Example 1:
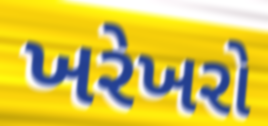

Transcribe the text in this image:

ખરેખરો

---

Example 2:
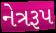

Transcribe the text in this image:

નેત્રરૂપ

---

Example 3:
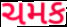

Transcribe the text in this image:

ચમક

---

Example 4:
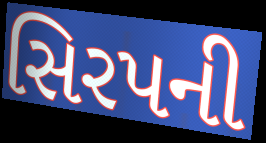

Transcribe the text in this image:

સિરપની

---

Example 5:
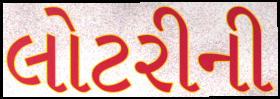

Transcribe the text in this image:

લોટરીની